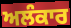
ਅਲੰਕਾਰ